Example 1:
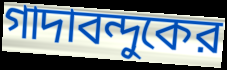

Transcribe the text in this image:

গাদাবন্দুকের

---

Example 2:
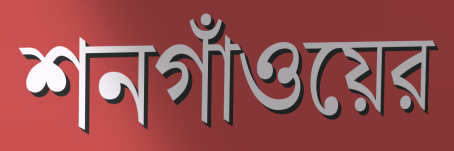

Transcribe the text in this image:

শনগাঁওয়ের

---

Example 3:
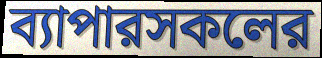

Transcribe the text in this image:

ব্যাপারসকলের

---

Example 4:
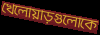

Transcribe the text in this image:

খেলোয়াড়গুলোকে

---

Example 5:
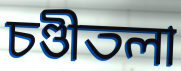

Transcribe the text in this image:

চণ্ডীতলা